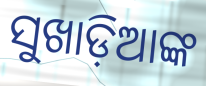
ସୁଖାଡ଼ିଆଙ୍କ